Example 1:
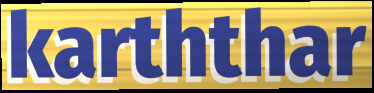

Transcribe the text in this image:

karththar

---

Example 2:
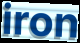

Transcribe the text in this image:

iron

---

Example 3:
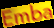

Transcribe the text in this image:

Emba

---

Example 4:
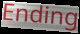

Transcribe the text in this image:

Ending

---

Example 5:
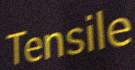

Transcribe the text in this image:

Tensile